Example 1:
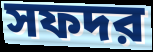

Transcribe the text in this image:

সফদর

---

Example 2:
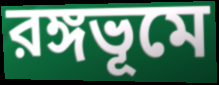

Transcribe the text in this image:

রঙ্গভূমে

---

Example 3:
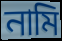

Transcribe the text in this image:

নামি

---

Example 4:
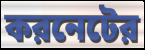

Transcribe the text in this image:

করনেটের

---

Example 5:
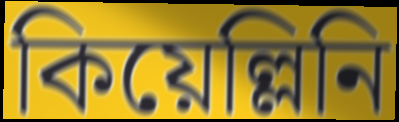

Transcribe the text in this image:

কিয়েল্লিনি